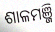
ଶାଳମଞ୍ଜି